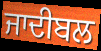
ਜਾਦੀਬਲ